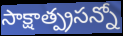
సాక్షాత్ప్రసన్నో